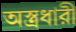
অস্ত্রধারী